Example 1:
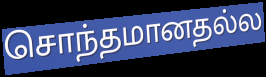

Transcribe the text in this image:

சொந்தமானதல்ல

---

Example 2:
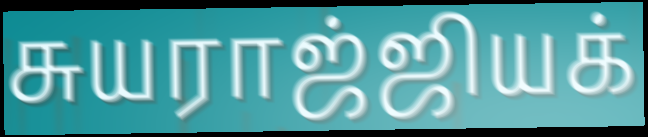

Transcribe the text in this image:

சுயராஜ்ஜியக்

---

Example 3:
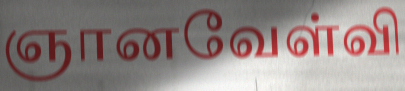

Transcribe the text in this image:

ஞானவேள்வி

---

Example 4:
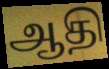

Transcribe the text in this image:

ஆதி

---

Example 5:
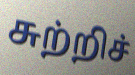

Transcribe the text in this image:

சுற்றிச்